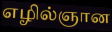
எழில்ஞான